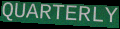
QUARTERLY